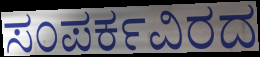
ಸಂಪರ್ಕವಿರದ